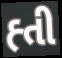
હ્તી